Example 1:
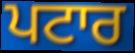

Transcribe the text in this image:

ਪਟਾਰ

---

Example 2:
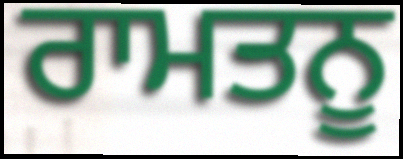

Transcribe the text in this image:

ਰਾਮਤਨੂ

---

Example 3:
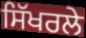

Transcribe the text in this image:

ਸਿੱਖਰਲੇ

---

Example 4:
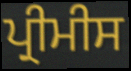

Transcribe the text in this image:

ਪ੍ਰੀਮੀਸ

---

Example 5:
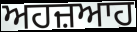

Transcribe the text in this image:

ਅਹਜ਼ਆਹ